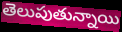
తెలుపుతున్నాయి